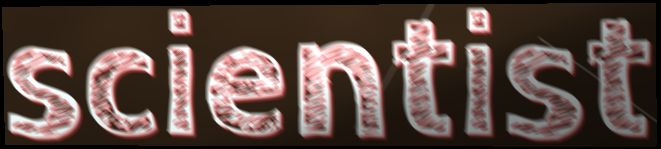
scientist